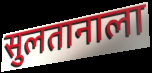
सुलतानाला